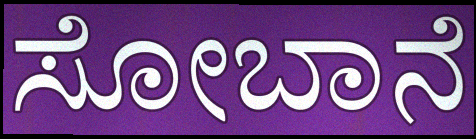
ಸೋಬಾನೆ